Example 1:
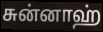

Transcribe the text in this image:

சுன்னாஹ்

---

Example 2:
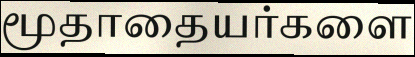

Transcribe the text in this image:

மூதாதையர்களை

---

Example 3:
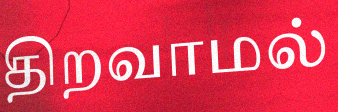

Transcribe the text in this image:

திறவாமல்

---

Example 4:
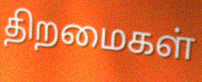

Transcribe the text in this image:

திறமைகள்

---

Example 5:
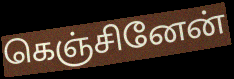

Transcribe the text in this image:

கெஞ்சினேன்